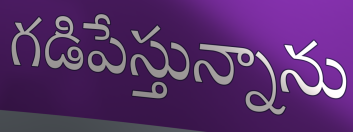
గడిపేస్తున్నాను